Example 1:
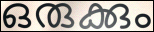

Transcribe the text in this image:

ഒരുക്കും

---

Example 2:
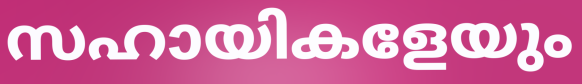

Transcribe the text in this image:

സഹായികളേയും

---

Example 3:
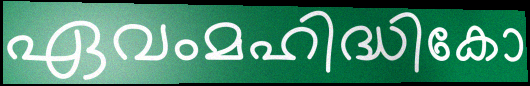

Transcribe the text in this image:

ഏവംമഹിദ്ധികോ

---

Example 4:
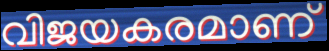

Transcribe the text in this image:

വിജയകരമാണ്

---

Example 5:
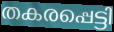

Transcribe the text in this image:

തകരപ്പെട്ടി